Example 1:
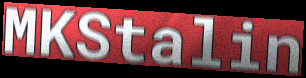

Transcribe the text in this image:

MKStalin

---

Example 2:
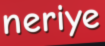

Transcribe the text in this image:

neriye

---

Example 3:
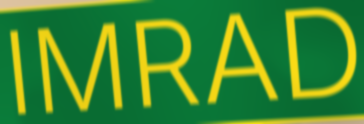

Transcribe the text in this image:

IMRAD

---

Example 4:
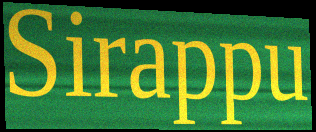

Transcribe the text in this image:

Sirappu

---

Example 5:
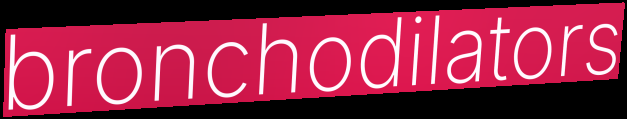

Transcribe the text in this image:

bronchodilators